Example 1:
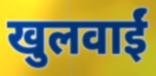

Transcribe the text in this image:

खुलवाईं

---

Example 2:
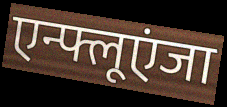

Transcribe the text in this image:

एन्फ्लूएंजा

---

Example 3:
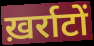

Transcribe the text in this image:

ख़र्राटों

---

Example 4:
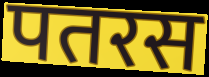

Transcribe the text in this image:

पतरस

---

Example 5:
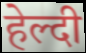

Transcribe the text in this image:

हेल्‍दी